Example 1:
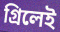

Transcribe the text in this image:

গ্রিলেই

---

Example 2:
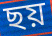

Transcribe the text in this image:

ছয়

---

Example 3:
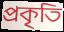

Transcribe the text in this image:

প্রকৃতি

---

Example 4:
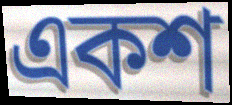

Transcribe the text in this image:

একশ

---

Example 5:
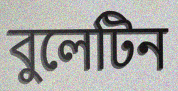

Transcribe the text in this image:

বুলেটিন